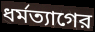
ধর্মত্যাগের